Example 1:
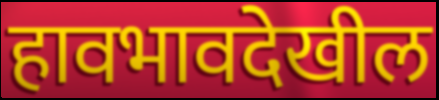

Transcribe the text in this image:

हावभावदेखील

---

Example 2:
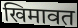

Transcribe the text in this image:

खिमावत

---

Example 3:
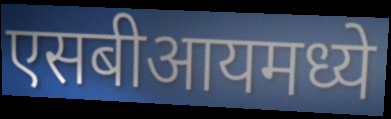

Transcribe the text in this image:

एसबीआयमध्ये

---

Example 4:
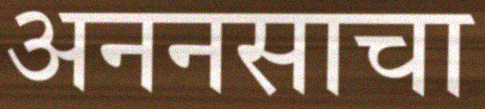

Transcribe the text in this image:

अननसाचा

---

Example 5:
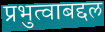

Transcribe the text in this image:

प्रभुत्वाबद्दल